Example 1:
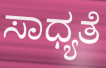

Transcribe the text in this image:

ಸಾಧ್ಯತೆ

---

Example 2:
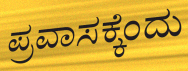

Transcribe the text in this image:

ಪ್ರವಾಸಕ್ಕೆಂದು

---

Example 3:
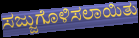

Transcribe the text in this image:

ಸಜ್ಜುಗೊಳಿಸಲಾಯಿತು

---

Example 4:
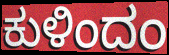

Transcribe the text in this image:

ಕುಳಿಂದಂ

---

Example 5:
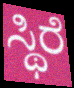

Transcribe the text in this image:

ಸ್ಥಿರೆ